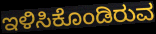
ಇಳಿಸಿಕೊಂಡಿರುವ